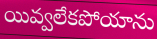
యివ్వలేకపోయాను